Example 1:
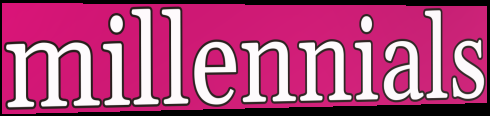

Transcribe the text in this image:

millennials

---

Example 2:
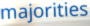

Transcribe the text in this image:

majorities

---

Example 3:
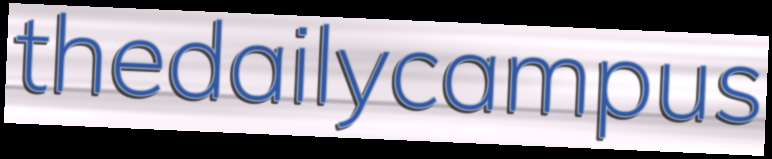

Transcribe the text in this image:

thedailycampus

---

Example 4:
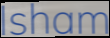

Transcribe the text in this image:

Isham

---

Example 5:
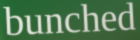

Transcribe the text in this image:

bunched